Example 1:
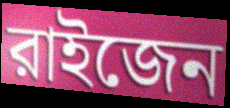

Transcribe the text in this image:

রাইজেন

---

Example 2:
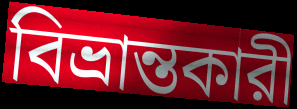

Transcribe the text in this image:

বিভ্রান্তকারী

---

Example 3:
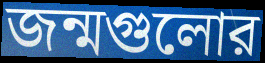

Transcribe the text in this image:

জন্মগুলোর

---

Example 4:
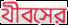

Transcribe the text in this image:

থীবসের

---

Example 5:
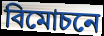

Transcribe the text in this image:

বিমোচনে